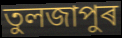
তুলজাপুৰ